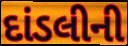
દાંડલીની